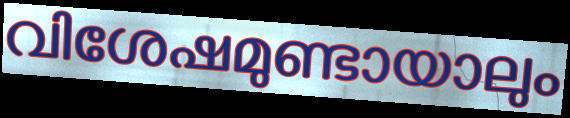
വിശേഷമുണ്ടായാലും